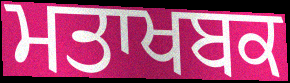
ਮਤਾਖਬਕ